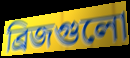
ব্রিজগুলো